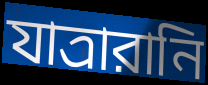
যাত্রারানি